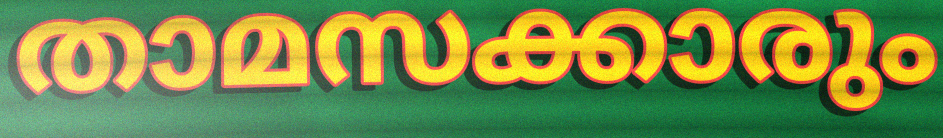
താമസക്കാരും